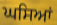
ਘਸਿਆਂ